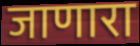
जाणारा